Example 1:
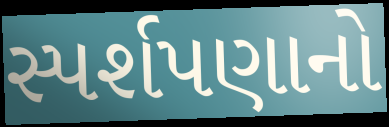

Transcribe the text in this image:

સ્પર્શપણાનો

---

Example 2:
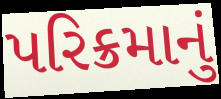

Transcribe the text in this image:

પરિક્રમાનું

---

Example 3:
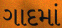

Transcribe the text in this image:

ગાદમાં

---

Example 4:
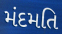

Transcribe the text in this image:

મંદમતિ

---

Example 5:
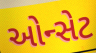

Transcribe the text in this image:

ઓન્સેટ